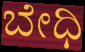
ಬೇಧಿ